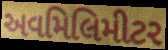
અવમિલિમીટર